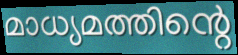
മാധ്യമത്തിന്റെ